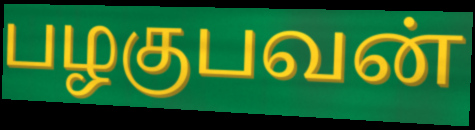
பழகுபவன்